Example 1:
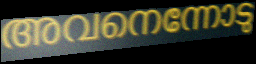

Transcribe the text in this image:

അവനെന്നോടു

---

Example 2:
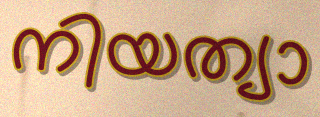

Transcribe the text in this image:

നിയത്യാ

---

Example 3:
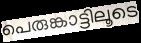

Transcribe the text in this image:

പെരുങ്കാട്ടിലൂടെ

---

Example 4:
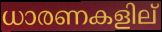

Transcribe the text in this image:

ധാരണകളില്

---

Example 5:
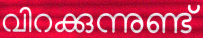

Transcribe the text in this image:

വിറക്കുന്നുണ്ട്